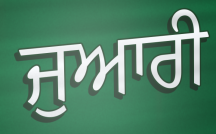
ਜੁਆਰੀ